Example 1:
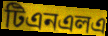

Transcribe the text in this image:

টিএনএলএ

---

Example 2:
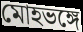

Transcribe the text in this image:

মোহভঙ্গে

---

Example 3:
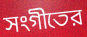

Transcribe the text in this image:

সংগীতের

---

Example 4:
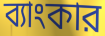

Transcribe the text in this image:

ব্যাংকার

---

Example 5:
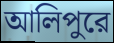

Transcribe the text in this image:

আলিপুরে